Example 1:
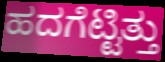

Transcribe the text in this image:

ಹದಗೆಟ್ಟಿತ್ತು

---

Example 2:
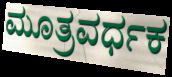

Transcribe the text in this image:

ಮೂತ್ರವರ್ಧಕ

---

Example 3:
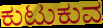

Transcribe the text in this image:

ಕುಟುಕುವ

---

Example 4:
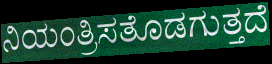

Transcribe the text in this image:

ನಿಯಂತ್ರಿಸತೊಡಗುತ್ತದೆ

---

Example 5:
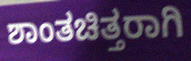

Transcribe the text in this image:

ಶಾಂತಚಿತ್ತರಾಗಿ